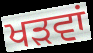
ਖੜਵਾਂ